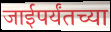
जाईपर्यंतच्या